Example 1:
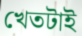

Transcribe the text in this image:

খেতটাই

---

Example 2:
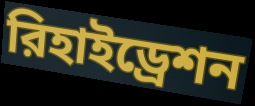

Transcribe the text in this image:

রিহাইড্রেশন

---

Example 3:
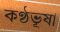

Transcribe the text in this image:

কণ্ঠভূষা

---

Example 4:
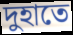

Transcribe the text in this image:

দুহাতে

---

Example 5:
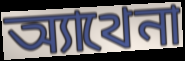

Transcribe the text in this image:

অ্যাথেনা